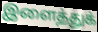
இளைத்துக்